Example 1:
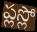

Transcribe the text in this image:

ప్లస్లో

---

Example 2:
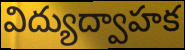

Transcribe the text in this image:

విద్యుద్వాహక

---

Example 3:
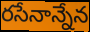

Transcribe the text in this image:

రసేనాన్నేన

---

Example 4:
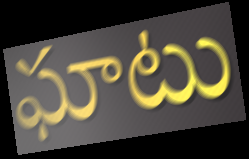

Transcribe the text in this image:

ఘాటు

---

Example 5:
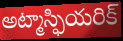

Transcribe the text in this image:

అట్మాస్ఫియరిక్